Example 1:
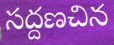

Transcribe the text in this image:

సద్దణచిన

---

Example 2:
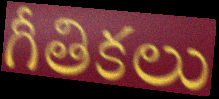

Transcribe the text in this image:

గీతికలు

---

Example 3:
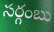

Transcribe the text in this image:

సర్గంబు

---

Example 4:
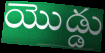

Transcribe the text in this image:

యొడ్డు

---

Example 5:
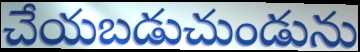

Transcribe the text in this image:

చేయబడుచుండును